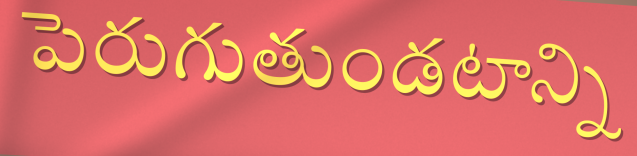
పెరుగుతుండటాన్ని